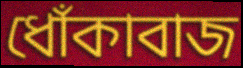
ধোঁকাবাজ